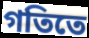
গতিতে